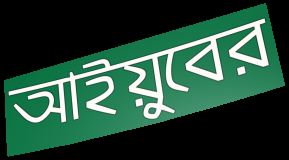
আইয়ুবের